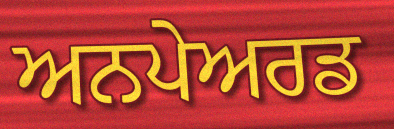
ਅਨਪੇਅਰਡ